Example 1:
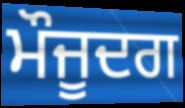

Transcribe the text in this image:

ਮੌਜੂਦਗ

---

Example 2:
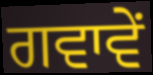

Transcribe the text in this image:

ਗਵਾਵੇਂ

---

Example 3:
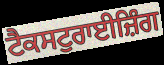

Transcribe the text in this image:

ਟੈਕਸਟੁਰਾਈਜ਼ਿੰਗ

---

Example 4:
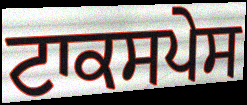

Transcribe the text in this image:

ਟਾਕਸਪੇਸ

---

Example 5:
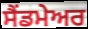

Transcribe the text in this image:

ਸੈਂਡਮੇਅਰ